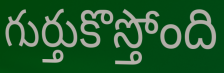
గుర్తుకొస్తోంది